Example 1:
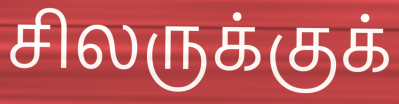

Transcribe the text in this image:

சிலருக்குக்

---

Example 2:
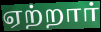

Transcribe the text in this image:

ஏற்றார்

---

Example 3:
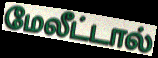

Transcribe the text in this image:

மேலீட்டால்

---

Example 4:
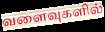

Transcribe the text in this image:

வளைவுகளில்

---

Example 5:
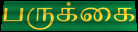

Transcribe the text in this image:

பருக்கை